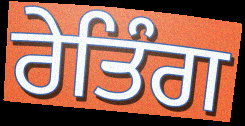
ਰੇਤਿੰਗ